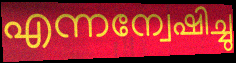
എന്നന്വേഷിച്ചു